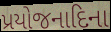
પ્રયોજનાદિના